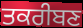
ਤਕਰੀਬਣ